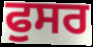
ਫੁਸਰ